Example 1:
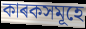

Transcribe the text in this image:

কাৰকসমূহে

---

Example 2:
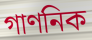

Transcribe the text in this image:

গাণনিক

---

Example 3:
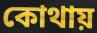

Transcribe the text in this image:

কোথায়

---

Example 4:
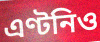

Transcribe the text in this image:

এণ্টনিও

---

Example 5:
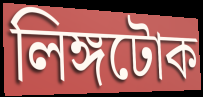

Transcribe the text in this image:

লিঙ্গটোক